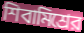
শিবামিশ্রের